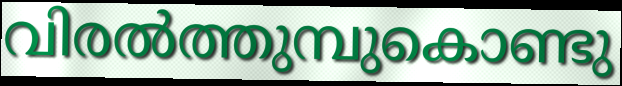
വിരൽത്തുമ്പുകൊണ്ടു